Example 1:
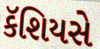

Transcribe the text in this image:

કૅશિયસે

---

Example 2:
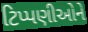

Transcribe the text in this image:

ટિપ્પણીઓને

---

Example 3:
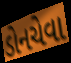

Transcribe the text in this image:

ડોનચેવા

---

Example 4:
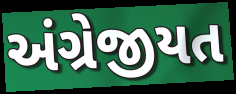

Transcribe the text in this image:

અંગ્રેજીયત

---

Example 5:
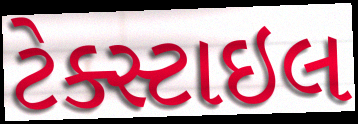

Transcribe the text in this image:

ટેક્સ્ટાઇલ